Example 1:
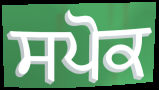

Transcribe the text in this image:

ਸਪੋਕ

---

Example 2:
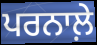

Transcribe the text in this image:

ਪਰਨਾਲ਼ੇ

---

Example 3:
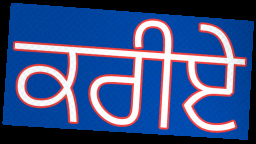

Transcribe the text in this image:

ਕਰੀਏੇ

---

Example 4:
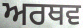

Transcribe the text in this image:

ਅਰਥਵ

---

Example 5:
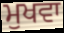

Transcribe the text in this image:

ਮੁਖਵਾ